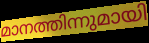
മാനത്തിന്നുമായി